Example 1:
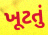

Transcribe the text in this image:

ખૂટતું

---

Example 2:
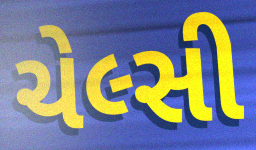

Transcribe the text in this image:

ચેલ્સી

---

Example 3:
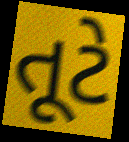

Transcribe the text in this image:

તૂટે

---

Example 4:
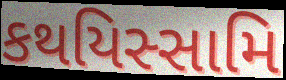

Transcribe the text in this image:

કથયિસ્સામિ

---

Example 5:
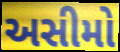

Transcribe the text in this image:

અસીમો